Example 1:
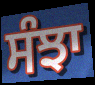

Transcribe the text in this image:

ਸੰਝਾ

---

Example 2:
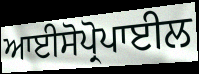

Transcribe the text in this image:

ਆਈਸੋਪ੍ਰੋਪਾਈਲ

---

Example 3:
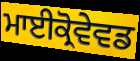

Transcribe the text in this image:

ਮਾਈਕ੍ਰੋਵੇਵਡ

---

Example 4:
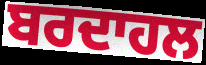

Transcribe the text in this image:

ਬਰਦਾਹਲ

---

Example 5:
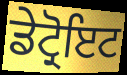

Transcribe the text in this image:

ਡੇਟ੍ਰੋਇਟ